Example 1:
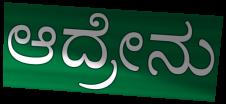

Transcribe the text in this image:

ಆದ್ರೇನು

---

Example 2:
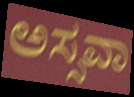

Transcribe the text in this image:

ಅಸ್ಸವಾ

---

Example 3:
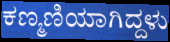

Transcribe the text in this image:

ಕಣ್ಮಣಿಯಾಗಿದ್ದಳು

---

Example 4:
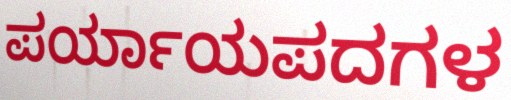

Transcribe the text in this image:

ಪರ್ಯಾಯಪದಗಳ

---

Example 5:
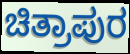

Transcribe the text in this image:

ಚಿತ್ರಾಪುರ